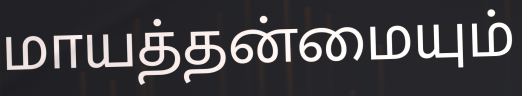
மாயத்தன்மையும்